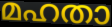
മഹതാ